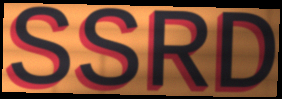
SSRD